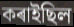
কৰাইছিল